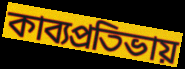
কাব্যপ্রতিভায়